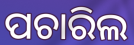
ପଚାରିଲ